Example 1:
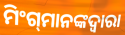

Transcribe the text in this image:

ମିଂଗ୍‍ମାନଙ୍କଦ୍ୱାରା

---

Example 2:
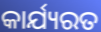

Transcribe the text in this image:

କାର୍ଯ୍ୟରତ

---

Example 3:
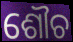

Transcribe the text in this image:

ଶୌଚ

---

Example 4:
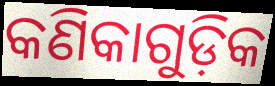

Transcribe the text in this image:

କଣିକାଗୁଡ଼ିକ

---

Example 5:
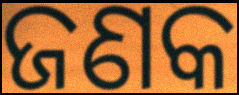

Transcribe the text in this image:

ଜଣକ